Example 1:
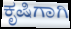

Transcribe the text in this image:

ಕೃಷಿಗಾಗಿ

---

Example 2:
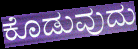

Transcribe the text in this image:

ಕೊಡುವುದು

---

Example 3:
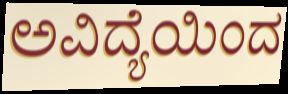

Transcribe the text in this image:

ಅವಿದ್ಯೆಯಿಂದ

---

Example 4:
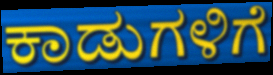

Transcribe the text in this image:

ಕಾಡುಗಳಿಗೆ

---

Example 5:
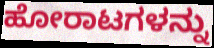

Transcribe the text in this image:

ಹೋರಾಟಗಳನ್ನು